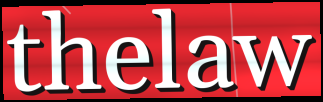
thelaw